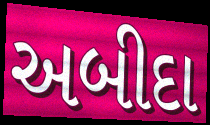
અબીદા